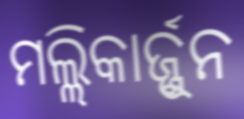
ମଲ୍ଲିକାର୍ଜ୍ଜୁନ